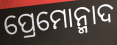
ପ୍ରେମୋନ୍ମାଦ